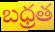
బధ్రత